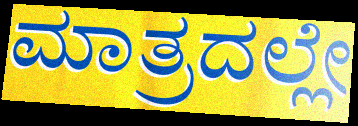
ಮಾತ್ರದಲ್ಲೇ